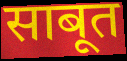
साबूत